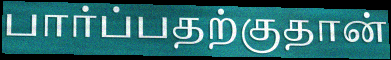
பார்ப்பதற்குதான்